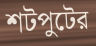
শটপুটের